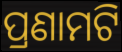
ପ୍ରଣାମଟି